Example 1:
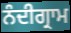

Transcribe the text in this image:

ਨੰਦੀਗ੍ਰਾਮ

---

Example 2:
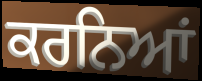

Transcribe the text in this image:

ਕਰਨਿਆਂ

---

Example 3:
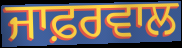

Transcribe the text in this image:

ਜਾਫ਼ਰਵਾਲ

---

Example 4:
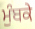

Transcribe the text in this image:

ਮੁੰਬਕੇ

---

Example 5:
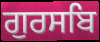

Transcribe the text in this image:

ਗੁਰਸਬਿ